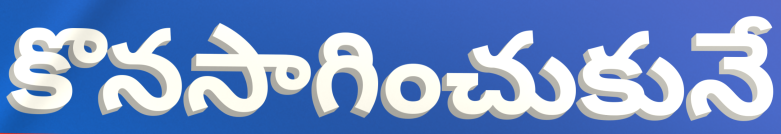
కొనసాగించుకునే